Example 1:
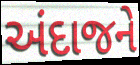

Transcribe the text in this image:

અંદાજને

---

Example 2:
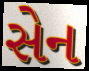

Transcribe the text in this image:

સેન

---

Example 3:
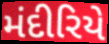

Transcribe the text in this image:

મંદીરિયે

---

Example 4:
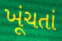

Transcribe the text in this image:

ખૂંચતાં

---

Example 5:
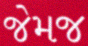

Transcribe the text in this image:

જેમજ